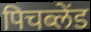
पिचब्लेंड